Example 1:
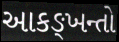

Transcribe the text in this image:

આકઙ્ખન્તો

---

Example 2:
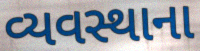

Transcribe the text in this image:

વ્યવસ્થાના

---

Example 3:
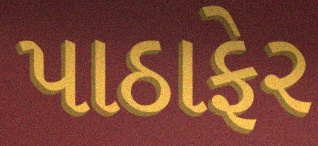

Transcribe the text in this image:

પાઠાફેર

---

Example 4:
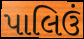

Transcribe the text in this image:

પાલિઉં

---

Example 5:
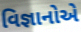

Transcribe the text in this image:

વિજ્ઞાનોએ